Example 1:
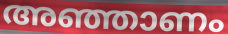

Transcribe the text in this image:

അഞ്ഞാണം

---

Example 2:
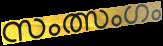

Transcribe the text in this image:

സംത്സംഗം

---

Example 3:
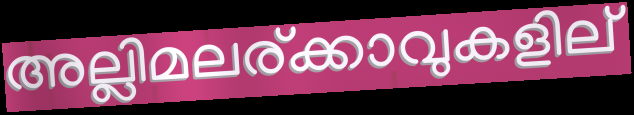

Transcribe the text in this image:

അല്ലിമലര്ക്കാവുകളില്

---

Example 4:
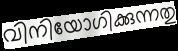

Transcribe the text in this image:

വിനിയോഗിക്കുന്നതു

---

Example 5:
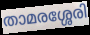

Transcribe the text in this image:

താമരശ്ശേരി